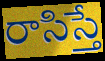
రాసిస్తే